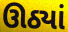
ઊઠ્યાં